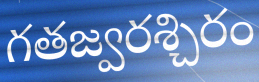
గతజ్వరశ్చిరం